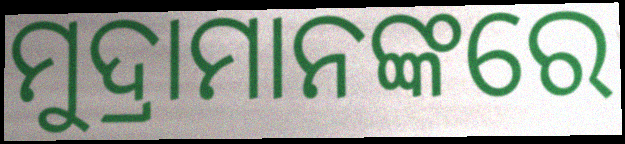
ମୁଦ୍ରାମାନଙ୍କରେ